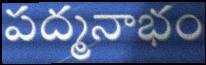
పద్మనాభం